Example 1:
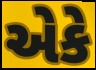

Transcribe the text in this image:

એકે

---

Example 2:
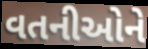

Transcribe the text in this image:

વતનીઓને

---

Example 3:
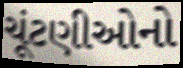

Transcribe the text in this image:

ચૂંટણીઓનો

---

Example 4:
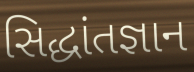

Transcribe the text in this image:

સિદ્ધાંતજ્ઞાન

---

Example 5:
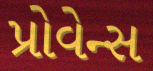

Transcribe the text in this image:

પ્રોવેન્સ